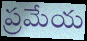
ప్రమేయ